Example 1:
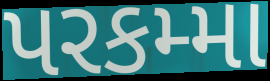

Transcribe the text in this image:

પરકમ્મા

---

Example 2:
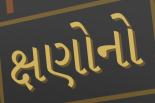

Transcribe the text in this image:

ક્ષણોનો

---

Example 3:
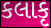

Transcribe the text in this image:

કલાકૃ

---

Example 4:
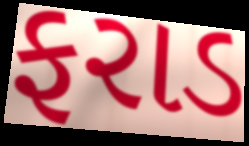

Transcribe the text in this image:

ફરાડ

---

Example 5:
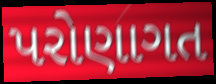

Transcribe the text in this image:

પરોણાગત